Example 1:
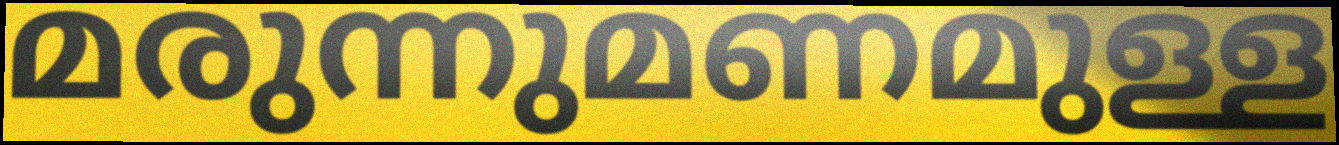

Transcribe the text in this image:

മരുന്നുമണമുള്ള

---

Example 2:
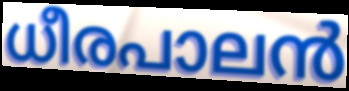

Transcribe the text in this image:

ധീരപാലൻ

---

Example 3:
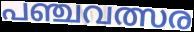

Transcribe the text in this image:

പഞ്ചവത്സര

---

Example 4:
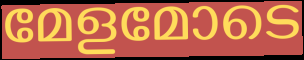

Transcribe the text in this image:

മേളമോടെ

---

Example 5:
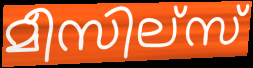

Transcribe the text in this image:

മീസില്സ്